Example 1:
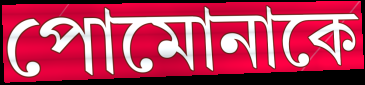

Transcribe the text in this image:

পোমোনাকে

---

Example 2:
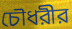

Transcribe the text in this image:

চৌধরীর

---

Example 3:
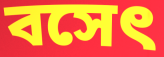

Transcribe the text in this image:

বসেৎ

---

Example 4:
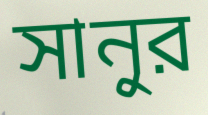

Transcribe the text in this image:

সানুর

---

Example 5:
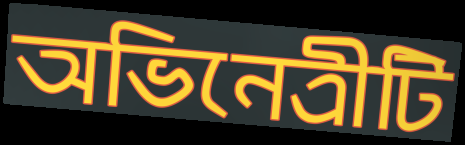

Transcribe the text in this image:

অভিনেত্রীটি